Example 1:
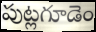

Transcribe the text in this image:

పుట్లగూడెం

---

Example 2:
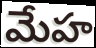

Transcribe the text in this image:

మేహ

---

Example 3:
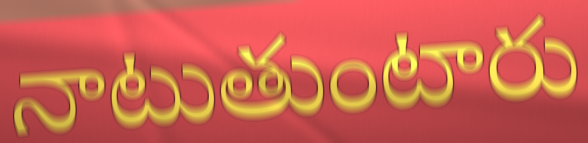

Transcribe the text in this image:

నాటుతుంటారు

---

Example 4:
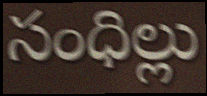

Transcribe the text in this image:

సంధిల్లు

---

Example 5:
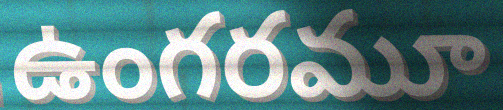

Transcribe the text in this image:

ఉంగరమూ